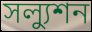
সল্যুশন